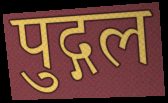
पुद्गल